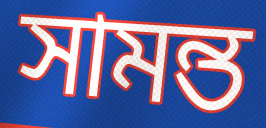
সামন্ত